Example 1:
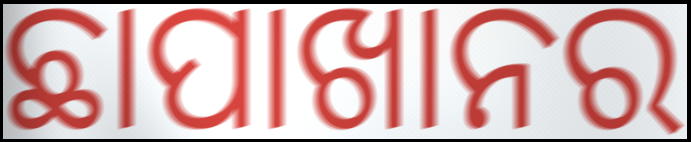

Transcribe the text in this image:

ଛାପାଖାନର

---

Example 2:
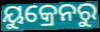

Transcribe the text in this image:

ୟୁକ୍ରେନରୁ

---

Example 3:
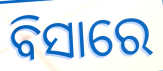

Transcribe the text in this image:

ବିସାରେ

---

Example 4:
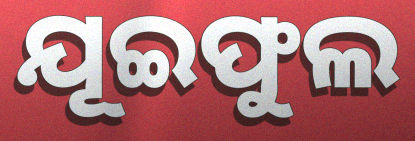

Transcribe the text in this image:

ଯୂଇଫୁଲ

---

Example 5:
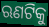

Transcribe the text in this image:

ଋଣଟିକୁ